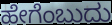
ಹೇಗೆಂಬುದು